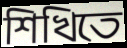
শিখিতে